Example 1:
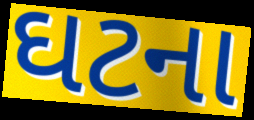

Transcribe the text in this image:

ઘટના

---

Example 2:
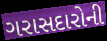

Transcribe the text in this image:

ગરાસદારોની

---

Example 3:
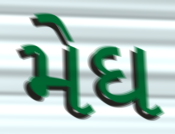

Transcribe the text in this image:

મેઘ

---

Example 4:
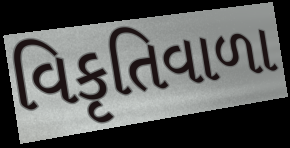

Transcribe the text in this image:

વિકૃતિવાળા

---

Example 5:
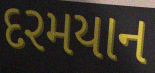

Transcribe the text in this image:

દરમયાન